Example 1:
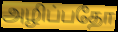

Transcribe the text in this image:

அழிப்பதோ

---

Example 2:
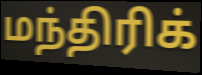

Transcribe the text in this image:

மந்திரிக்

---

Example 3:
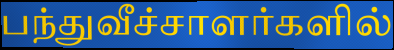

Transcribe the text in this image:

பந்துவீச்சாளர்களில்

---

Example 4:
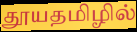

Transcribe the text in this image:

தூயதமிழில்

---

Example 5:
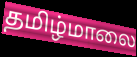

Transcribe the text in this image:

தமிழ்மாலை